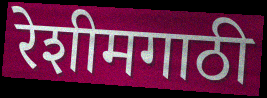
रेशीमगाठी